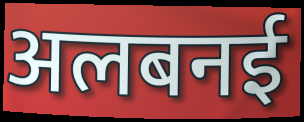
अलबनई